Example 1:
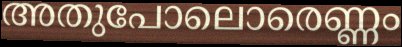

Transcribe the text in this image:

അതുപോലൊരെണ്ണം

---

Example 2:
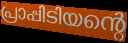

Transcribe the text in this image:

പ്രാപ്പിടിയന്റെ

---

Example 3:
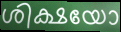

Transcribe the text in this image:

ശിക്ഷയോ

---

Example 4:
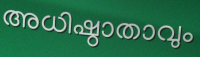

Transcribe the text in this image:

അധിഷ്ഠാതാവും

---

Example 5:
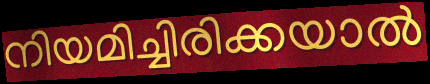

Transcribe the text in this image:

നിയമിച്ചിരിക്കയാൽ